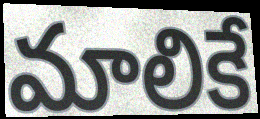
మాలికే